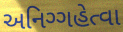
અનિગ્ગહેત્વા